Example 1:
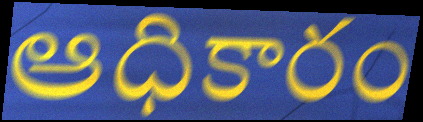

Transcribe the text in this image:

ఆధికారం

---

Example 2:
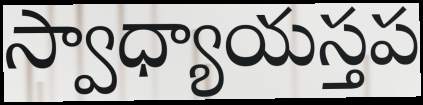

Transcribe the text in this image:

స్వాధ్యాయస్తప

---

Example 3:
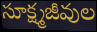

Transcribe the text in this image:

సూక్ష్మజీవుల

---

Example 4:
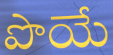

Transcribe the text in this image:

పొయే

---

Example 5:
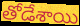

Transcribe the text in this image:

తోడేశాయి